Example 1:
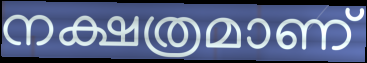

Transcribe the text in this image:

നക്ഷത്രമാണ്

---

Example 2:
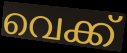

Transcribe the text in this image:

വെക്ക്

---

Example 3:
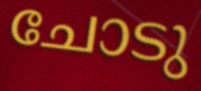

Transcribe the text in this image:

ചോടു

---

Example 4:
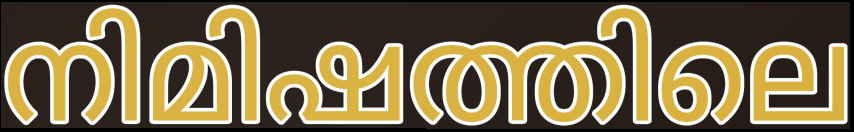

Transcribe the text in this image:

നിമിഷത്തിലെ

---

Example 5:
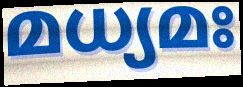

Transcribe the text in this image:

മധ്യമഃ